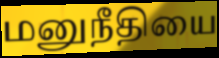
மனுநீதியை